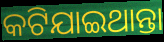
କଟିଯାଇଥାନ୍ତା